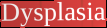
Dysplasia